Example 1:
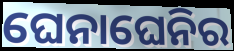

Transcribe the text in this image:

ଘେନାଘେନିର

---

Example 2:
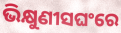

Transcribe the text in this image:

ଭିକ୍ଷୁଣୀସଘଂରେ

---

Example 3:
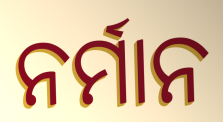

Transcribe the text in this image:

ନର୍ମାନ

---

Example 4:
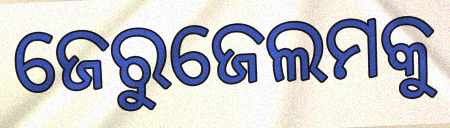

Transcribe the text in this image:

ଜେରୁଜେଲମକୁ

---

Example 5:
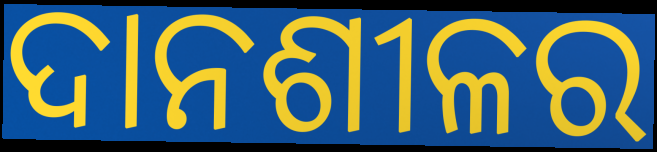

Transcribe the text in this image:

ଦାନଶୀଳର